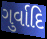
ગુર્વાદિ